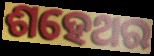
ଶହେଥର